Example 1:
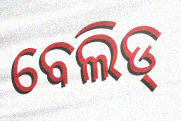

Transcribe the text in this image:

ବେଲିଡ୍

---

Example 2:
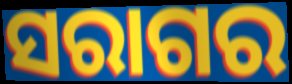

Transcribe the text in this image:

ସରାଗର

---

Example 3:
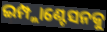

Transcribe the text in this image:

ଇମ୍ପ୍ଲାଣ୍ଟେସନକୁ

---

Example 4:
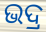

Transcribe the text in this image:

ଭଦ୍ର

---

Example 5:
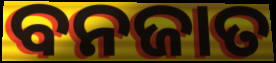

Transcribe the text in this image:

ବନଜାତ